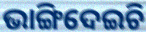
ଭାଙ୍ଗିଦେଇଚି